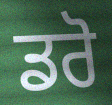
ਡਰੋ